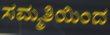
ಸಮ್ಮತಿಯಿಂದ